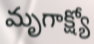
మృగాక్ష్యో